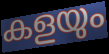
കളയും